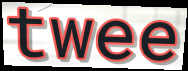
twee